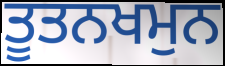
ਤੂਤਨਖਮੁਨ